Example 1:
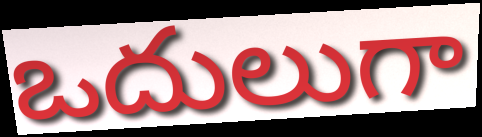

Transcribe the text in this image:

ఒదులుగా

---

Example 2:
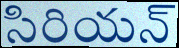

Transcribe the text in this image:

సిరియన్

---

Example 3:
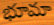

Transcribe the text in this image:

భూమా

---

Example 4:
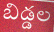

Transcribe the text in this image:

బిడ్డల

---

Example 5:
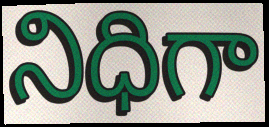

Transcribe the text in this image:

నిధిగా